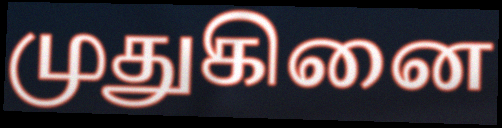
முதுகினை